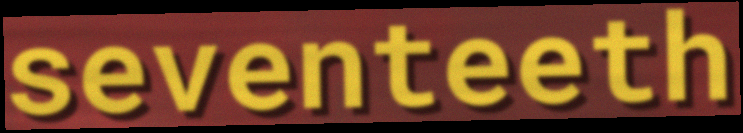
seventeeth